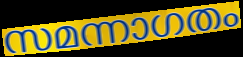
സമന്നാഗതം